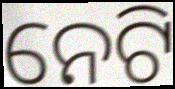
ନେଟି